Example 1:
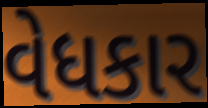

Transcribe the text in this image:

વેધકાર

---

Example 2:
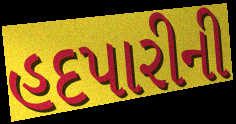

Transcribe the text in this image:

હદપારીની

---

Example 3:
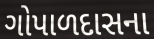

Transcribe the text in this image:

ગોપાળદાસના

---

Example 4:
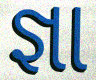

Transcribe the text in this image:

જ્ઞા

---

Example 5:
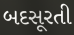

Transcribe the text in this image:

બદસૂરતી